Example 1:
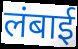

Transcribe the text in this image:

लंबाई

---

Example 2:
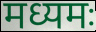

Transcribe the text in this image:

मध्यमः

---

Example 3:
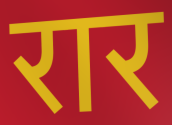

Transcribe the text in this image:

रार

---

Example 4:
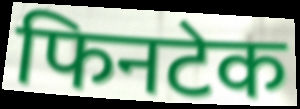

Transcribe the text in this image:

फिनटेक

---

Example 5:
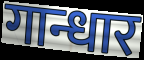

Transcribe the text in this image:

गान्धार